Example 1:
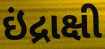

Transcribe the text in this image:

ઇંદ્રાક્ષી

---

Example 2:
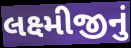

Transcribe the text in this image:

લક્ષ્મીજીનું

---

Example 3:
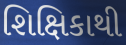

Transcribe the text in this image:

શિક્ષિકાથી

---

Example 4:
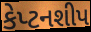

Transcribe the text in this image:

કેપ્ટનશીપ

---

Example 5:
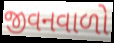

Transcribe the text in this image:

જીવનવાળો